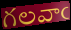
గలవాఁ